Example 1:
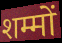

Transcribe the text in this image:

शम्मों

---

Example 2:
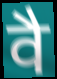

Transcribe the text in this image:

वै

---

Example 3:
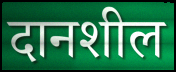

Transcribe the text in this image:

दानशील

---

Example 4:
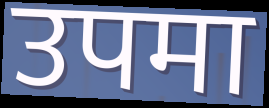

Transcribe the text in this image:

उपमा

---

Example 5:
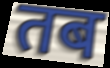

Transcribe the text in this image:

तब